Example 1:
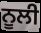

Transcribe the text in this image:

ਨੂਲੀ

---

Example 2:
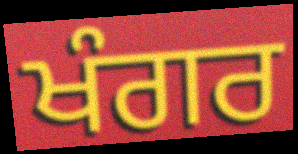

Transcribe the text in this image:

ਖੰਗਰ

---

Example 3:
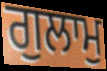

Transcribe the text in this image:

ਗੁਲਾਮੁ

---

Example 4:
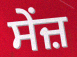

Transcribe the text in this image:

ਸੇਂਜ਼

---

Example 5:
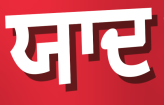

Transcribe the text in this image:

ਯਾਦ